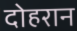
दोहरान